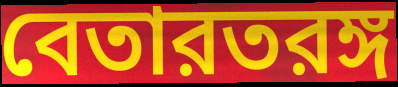
বেতারতরঙ্গ